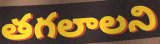
తగలాలని